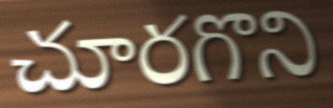
చూరగొని